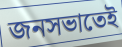
জনসভাতেই